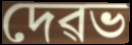
দেৱভ